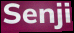
Senji